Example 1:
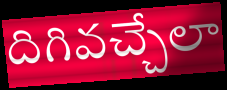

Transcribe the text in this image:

దిగివచ్చేలా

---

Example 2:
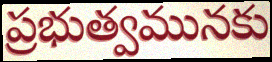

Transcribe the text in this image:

ప్రభుత్వమునకు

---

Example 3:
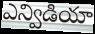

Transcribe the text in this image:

ఎన్విడియా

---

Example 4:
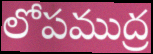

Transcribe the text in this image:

లోపముద్ర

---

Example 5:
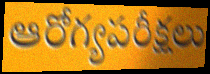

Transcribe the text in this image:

ఆరోగ్యపరీక్షలు